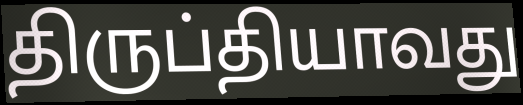
திருப்தியாவது